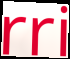
rri